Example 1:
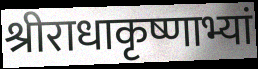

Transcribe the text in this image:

श्रीराधाकृष्णाभ्यां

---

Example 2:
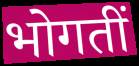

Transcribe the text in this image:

भोगतीं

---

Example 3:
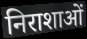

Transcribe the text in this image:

निराशाओं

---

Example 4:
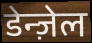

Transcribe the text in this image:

डेन्ज़ेल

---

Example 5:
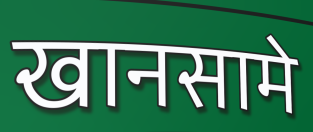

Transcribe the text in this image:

खानसामे